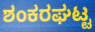
ಶಂಕರಘಟ್ಟ